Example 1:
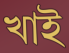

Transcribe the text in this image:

খাই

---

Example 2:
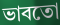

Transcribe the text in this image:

ভাবতো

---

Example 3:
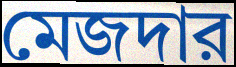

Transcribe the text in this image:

মেজদার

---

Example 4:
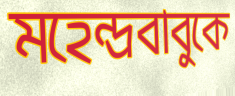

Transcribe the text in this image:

মহেন্দ্রবাবুকে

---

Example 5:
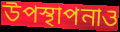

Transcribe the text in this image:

উপস্থাপনাও